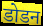
डोडन